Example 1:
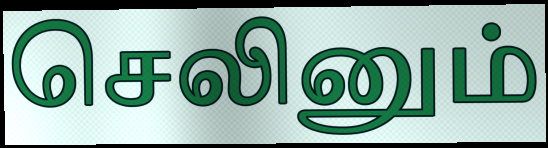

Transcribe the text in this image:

செலினும்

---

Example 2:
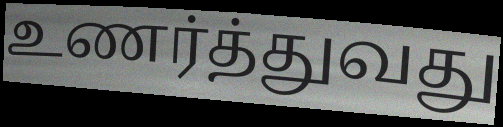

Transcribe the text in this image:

உணர்த்துவது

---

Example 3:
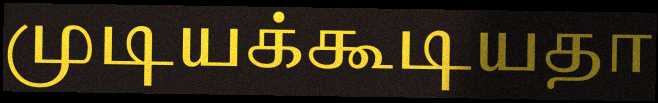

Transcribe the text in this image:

முடியக்கூடியதா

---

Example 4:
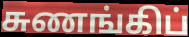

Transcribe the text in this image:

சுணங்கிப்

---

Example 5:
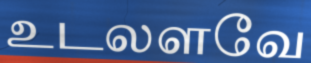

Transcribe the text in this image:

உடலளவே